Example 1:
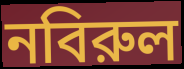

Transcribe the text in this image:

নবিরুল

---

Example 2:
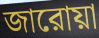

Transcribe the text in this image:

জারোয়া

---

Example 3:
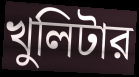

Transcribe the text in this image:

খুলিটার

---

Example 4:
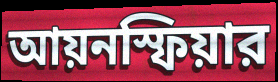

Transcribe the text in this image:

আয়নস্ফিয়ার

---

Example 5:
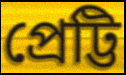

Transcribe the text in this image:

প্রেট্টি